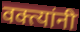
वक्त्यांनी